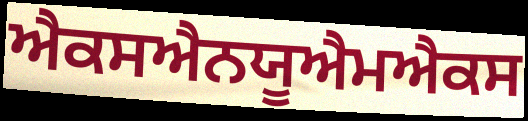
ਐਕਸਐਨਯੂਐਮਐਕਸ